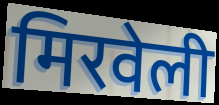
मिरवेली